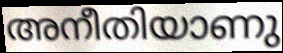
അനീതിയാണു